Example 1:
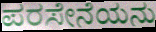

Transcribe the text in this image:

ಪರಸೇನೆಯನು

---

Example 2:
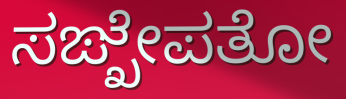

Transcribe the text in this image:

ಸಙ್ಖೇಪತೋ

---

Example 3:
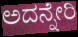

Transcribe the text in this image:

ಅದನ್ನೇರಿ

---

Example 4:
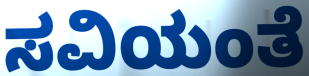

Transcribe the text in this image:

ಸವಿಯಂತೆ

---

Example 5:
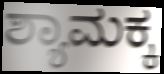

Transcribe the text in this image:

ಶ್ಯಾಮಕ್ಕ